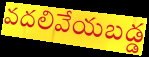
వదలివేయబడ్డ